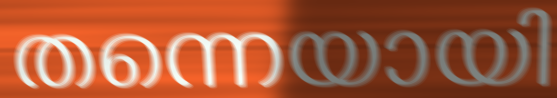
തന്നെയായി